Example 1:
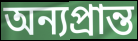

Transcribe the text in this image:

অন্যপ্রান্ত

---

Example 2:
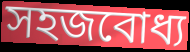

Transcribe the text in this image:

সহজবোধ্য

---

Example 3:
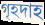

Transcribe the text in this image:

গৃহদাহ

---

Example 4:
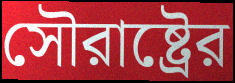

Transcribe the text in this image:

সৌরাষ্ট্রের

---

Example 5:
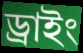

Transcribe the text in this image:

ড্রাইং